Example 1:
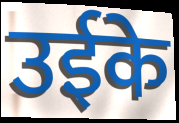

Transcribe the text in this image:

उईके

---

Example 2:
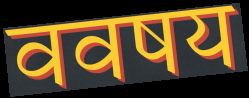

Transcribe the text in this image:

ववषय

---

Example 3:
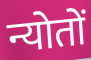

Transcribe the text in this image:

न्योतों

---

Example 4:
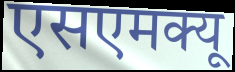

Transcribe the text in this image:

एसएमक्यू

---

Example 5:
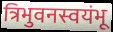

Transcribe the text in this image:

त्रिभुवनस्वयंभू